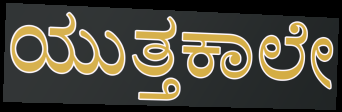
ಯುತ್ತಕಾಲೇ